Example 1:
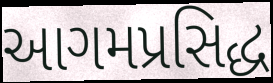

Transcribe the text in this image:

આગમપ્રસિદ્ધ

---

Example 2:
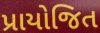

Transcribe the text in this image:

પ્રાયોજિત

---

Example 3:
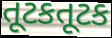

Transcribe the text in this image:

તૂટકતૂટક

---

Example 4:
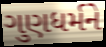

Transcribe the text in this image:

ગુણધર્મને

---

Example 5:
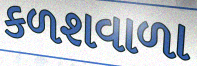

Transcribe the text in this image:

કળશવાળા